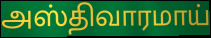
அஸ்திவாரமாய்